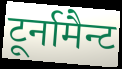
टूर्नामैन्ट